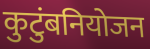
कुटुंबनियोजन